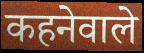
कहनेवाले